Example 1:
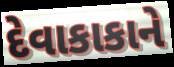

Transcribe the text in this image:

દેવાકાકાને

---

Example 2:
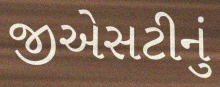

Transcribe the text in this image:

જીએસટીનું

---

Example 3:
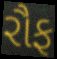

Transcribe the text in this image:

રૌફ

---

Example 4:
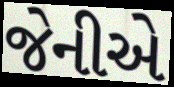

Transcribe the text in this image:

જેનીએ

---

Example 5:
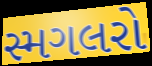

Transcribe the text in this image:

સ્મગલરો